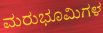
ಮರುಭೂಮಿಗಳ